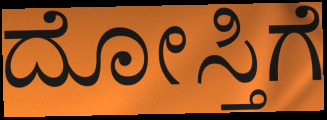
ದೋಸ್ತಿಗೆ